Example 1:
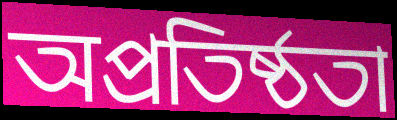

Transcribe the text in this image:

অপ্রতিষ্ঠতা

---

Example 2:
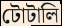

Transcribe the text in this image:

টোটালি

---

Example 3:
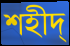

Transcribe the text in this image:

শহীদ্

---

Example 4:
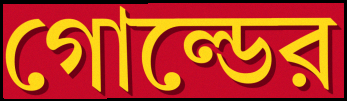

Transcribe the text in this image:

গোল্ডের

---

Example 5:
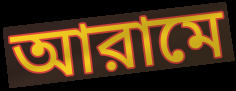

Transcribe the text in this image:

আরামে